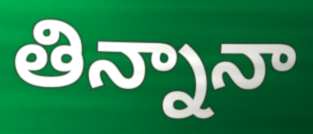
తిన్నానా